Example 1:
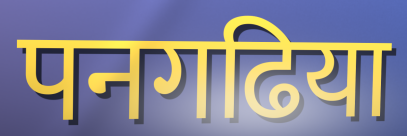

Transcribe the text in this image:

पनगढिया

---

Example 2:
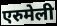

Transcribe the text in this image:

एरुमेली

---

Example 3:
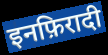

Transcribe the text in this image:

इनफ़िरादी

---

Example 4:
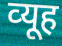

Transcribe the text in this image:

व्‍यूह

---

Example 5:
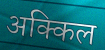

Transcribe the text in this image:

अक्किल